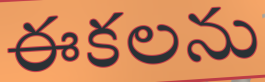
ఈకలను